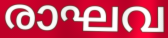
രാഘവ